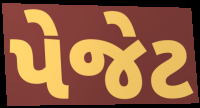
પેજેટ